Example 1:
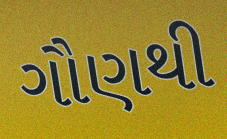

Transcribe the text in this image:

ગૌણથી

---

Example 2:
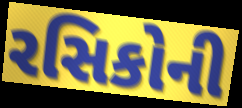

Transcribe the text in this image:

રસિકોની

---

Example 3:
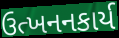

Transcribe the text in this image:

ઉત્ખનનકાર્ય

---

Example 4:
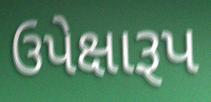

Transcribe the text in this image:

ઉપેક્ષારૂપ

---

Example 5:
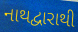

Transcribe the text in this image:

નાથદ્વારાથી